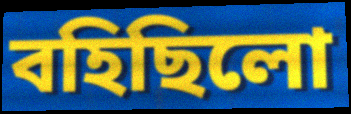
বহিছিলো